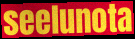
seelunota